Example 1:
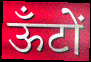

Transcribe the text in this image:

ऊँटों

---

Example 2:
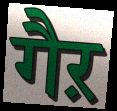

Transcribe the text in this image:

गैऱ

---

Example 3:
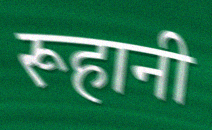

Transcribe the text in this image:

रूहानी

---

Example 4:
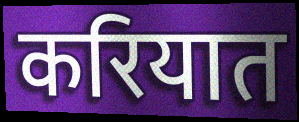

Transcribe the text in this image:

करियात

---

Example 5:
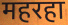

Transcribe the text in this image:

महरहा